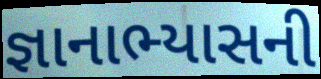
જ્ઞાનાભ્યાસની